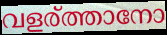
വളര്ത്താനോ